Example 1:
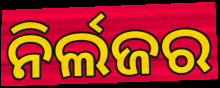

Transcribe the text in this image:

ନିର୍ଲଜର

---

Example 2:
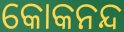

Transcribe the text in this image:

କୋକନନ୍ଦ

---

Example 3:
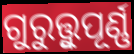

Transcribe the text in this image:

ଗୁରୁତ୍ତ୍ୱୁପୂର୍ଣ୍ଣ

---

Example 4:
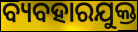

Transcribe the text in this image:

ବ୍ୟବହାରଯୁକ୍ତ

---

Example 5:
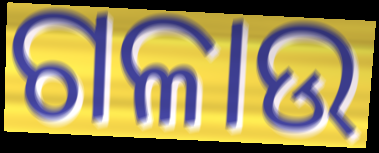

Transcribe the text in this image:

ଗଳାଉ